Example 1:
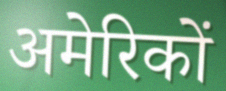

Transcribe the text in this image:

अमेरिकों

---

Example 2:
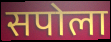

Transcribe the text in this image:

सपोला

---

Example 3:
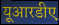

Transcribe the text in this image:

यूआरडीए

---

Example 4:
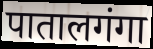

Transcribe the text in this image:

पातालगंगा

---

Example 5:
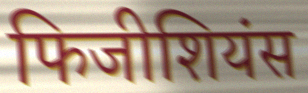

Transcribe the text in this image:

फिजीशियंस